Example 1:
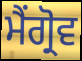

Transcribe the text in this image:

ਮੈਂਗ੍ਰੋਵ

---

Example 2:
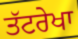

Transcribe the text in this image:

ਤੱਟਰੇਖਾ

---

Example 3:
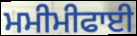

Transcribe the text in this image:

ਮਮੀਮੀਫਾਈ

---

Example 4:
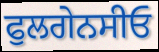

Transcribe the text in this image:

ਫੁਲਗੇਨਸੀਓ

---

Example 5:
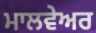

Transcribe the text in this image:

ਮਾਲਵੇਅਰ